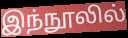
இந்நூலில்